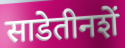
साडेतीनशें